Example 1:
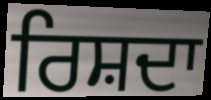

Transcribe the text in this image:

ਰਿਸ਼ਦਾ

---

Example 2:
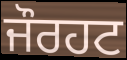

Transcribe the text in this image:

ਜੌਰਹਟ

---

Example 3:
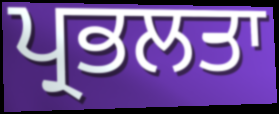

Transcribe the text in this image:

ਪ੍ਰਭਲਤਾ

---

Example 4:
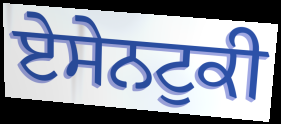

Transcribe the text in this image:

ਏਸੇਨਟੁਕੀ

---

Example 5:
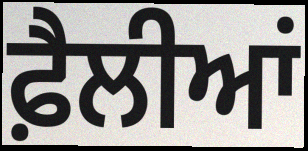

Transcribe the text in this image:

ਫ਼ੈਲੀਆਂ